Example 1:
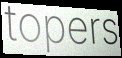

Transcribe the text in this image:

topers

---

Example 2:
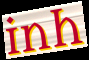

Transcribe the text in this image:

inh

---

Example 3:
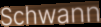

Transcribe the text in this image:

Schwann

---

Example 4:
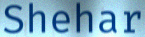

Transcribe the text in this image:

Shehar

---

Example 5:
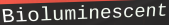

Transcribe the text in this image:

Bioluminescent